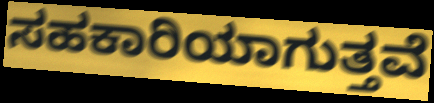
ಸಹಕಾರಿಯಾಗುತ್ತವೆ